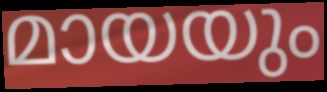
മായയും